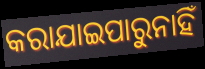
କରାଯାଇପାରୁନାହିଁ